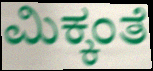
ಮಿಕ್ಕಂತೆ